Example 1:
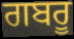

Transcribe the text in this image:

ਗਬਰੂ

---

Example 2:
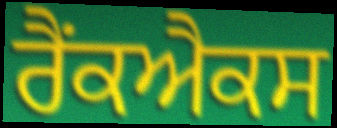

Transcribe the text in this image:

ਰੈਂਕਐਕਸ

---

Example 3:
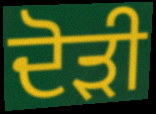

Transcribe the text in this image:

ਦੋੜੀ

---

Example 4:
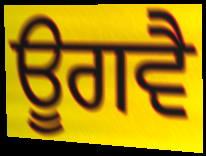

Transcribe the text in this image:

ਊਗਵੈ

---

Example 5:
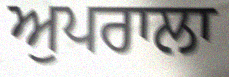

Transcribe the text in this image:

ਅੁਪਰਾਲਾ